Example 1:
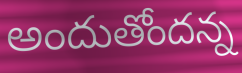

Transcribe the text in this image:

అందుతోందన్న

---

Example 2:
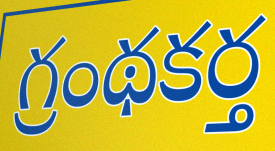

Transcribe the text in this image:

గ్రంథకర్త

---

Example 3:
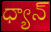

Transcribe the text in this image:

ధ్యాన్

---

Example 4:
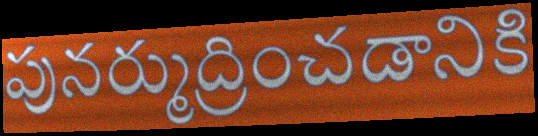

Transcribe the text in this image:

పునర్ముద్రించడానికి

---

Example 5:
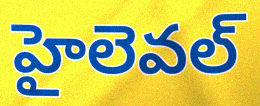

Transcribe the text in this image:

హైలెవల్